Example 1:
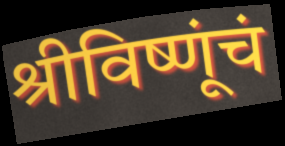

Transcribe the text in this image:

श्रीविष्णूंचं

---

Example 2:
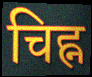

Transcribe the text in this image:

चिह्न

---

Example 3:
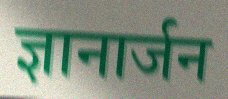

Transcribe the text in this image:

ज्ञानार्जन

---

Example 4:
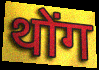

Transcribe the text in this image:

थोंग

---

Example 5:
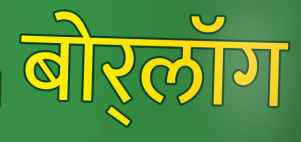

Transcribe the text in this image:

बोर्‌लॉग